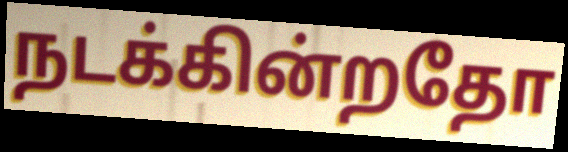
நடக்கின்றதோ